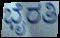
ಭೈರತಿ